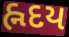
હ્નદય